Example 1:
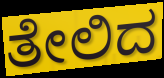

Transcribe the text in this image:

ತೇಲಿದ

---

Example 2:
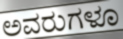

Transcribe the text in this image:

ಅವರುಗಳೂ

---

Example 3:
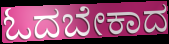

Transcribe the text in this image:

ಓದಬೇಕಾದ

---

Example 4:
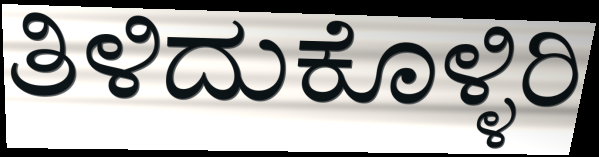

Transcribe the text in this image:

ತಿಳಿದುಕೊಳ್ಳಿರಿ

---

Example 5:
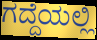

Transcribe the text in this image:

ಗದ್ದೆಯಲ್ಲಿ